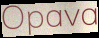
Opava